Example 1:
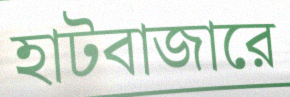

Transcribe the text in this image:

হাটবাজারে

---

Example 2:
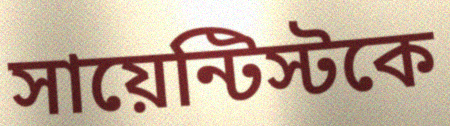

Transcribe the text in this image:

সায়েন্টিস্টকে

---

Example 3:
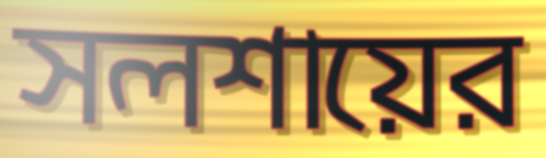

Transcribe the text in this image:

সলশায়ের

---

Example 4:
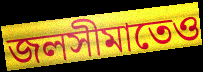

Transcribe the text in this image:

জলসীমাতেও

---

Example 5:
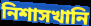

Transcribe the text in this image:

নিশাসখানি